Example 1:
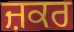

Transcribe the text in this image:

ਜ਼ਕਰ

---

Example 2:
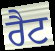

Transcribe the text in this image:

ਰੈਟ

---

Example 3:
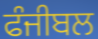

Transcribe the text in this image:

ਫੰਜੀਬਲ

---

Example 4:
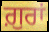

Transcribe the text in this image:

ਗ਼ੁਰਾਂ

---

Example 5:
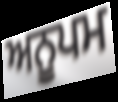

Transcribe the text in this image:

ਅਨੂਪਮ